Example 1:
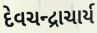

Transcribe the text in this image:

દેવચન્દ્રાચાર્ય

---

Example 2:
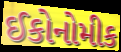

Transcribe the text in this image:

ઈકોનોમીક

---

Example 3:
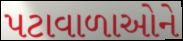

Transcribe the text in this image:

પટાવાળાઓને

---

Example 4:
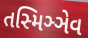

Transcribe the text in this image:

તસ્મિઞ્ઞેવ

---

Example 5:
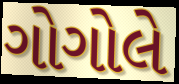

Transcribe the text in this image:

ગોગોલે